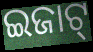
ଇଜାଟ୍